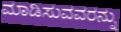
ಮಾಡಿಸುವವರನ್ನು